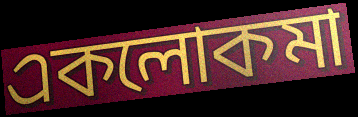
একলোকমা